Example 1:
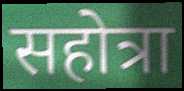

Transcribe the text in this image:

सहोत्रा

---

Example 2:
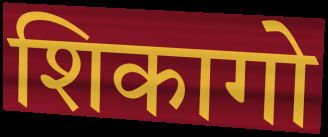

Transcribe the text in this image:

शिकागो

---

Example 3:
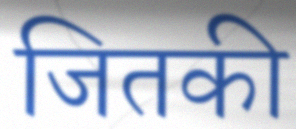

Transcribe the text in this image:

जितकी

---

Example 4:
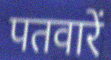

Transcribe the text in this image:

पतवारें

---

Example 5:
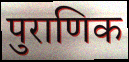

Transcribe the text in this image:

पुराणिक